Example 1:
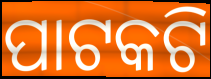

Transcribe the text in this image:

ପାଟକଟି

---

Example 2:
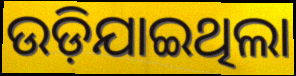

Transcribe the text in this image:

ଉଡ଼ିଯାଇଥିଲା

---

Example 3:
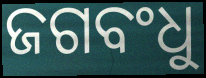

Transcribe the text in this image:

ଜଗବଂଧୁ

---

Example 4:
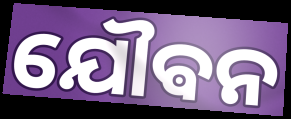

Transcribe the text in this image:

ଯୌଵନ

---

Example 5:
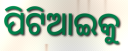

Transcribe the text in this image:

ପିଟିଆଇକୁ